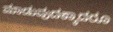
ಮಾಡುವುದಕ್ಕಾದರೂ